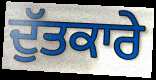
ਦੁੱਤਕਾਰੇ